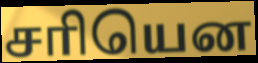
சரியென